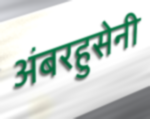
अंबरहुसेनी